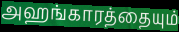
அஹங்காரத்தையும்